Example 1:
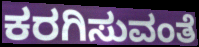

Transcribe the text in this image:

ಕರಗಿಸುವಂತೆ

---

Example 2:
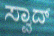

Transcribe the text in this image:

ಸ್ವಾದ್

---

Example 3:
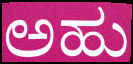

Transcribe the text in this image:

ಅಹು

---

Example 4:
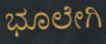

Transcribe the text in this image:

ಭೂಲೇಗಿ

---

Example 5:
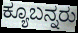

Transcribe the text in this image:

ಕ್ಯೂಬನ್ನರು